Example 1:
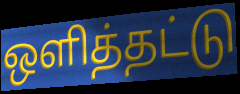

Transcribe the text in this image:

ஒளித்தட்டு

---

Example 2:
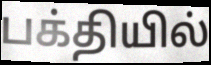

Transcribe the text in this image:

பக்தியில்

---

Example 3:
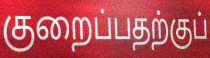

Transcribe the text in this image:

குறைப்பதற்குப்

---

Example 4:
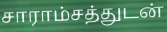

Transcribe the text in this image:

சாராம்சத்துடன்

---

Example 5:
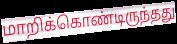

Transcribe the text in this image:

மாறிக்கொண்டிருந்தது